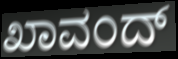
ಖಾವಂದ್